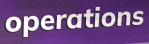
operations